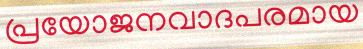
പ്രയോജനവാദപരമായ